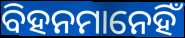
ବିହନମାନେହିଁ